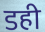
डही